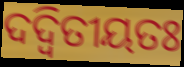
ଦଦ୍ୱିତୀୟତଃ